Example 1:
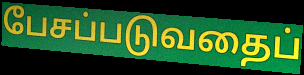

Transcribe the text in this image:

பேசப்படுவதைப்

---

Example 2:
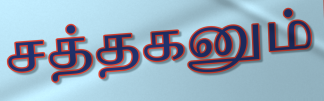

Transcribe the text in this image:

சத்தகனும்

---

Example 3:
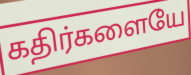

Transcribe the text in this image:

கதிர்களையே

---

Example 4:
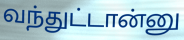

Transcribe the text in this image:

வந்துட்டான்னு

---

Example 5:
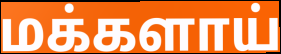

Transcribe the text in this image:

மக்களாய்